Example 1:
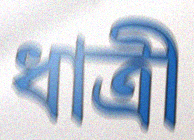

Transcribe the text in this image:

ধাত্ৰী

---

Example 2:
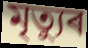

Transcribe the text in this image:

মৃত্যুৰ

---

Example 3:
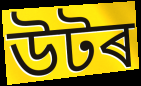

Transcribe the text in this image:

উটৰ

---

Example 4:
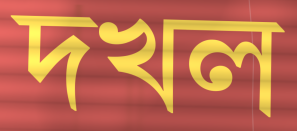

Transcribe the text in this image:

দখল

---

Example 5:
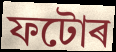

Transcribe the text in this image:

ফটোৰ